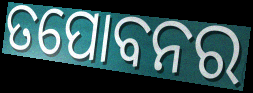
ତପୋବନର